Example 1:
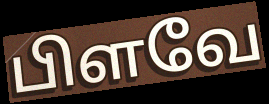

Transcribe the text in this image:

பிளவே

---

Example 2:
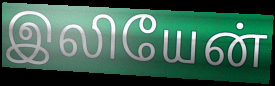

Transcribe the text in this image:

இலியேன்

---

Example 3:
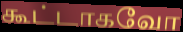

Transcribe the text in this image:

கூட்டாகவோ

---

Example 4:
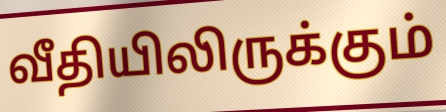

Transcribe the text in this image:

வீதியிலிருக்கும்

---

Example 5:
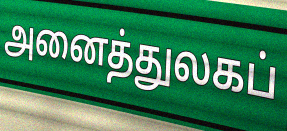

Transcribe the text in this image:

அனைத்துலகப்